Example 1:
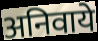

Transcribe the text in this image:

अनिवाये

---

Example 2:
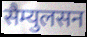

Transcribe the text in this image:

सैम्युलसन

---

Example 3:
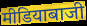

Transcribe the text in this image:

मीडियाबाजी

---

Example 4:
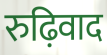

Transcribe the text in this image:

रुढ़िवाद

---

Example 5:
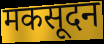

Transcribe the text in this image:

मकसूदन